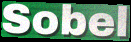
Sobel